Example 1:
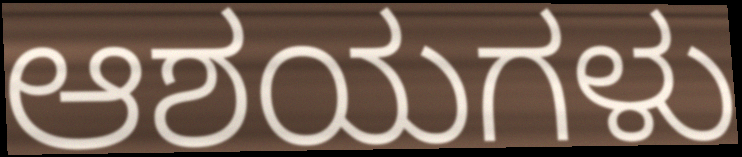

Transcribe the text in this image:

ಆಶಯಗಳು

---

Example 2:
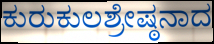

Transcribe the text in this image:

ಕುರುಕುಲಶ್ರೇಷ್ಠನಾದ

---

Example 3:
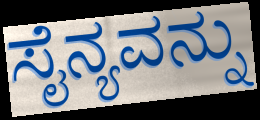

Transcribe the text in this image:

ಸೈನ್ಯವನ್ನು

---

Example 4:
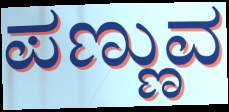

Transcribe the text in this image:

ಪಣ್ಣುವ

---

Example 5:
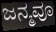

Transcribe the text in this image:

ಜನ್ಮವೂ